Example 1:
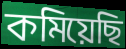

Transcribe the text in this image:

কমিয়েছি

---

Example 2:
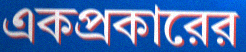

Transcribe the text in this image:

একপ্রকারের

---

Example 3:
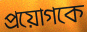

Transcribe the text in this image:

প্রয়োগকে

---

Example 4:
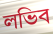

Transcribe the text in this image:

লভিব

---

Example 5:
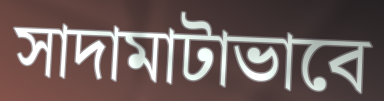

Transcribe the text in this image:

সাদামাটাভাবে